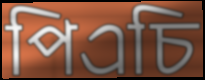
পিএচি